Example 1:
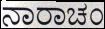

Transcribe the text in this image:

ನಾರಾಚಂ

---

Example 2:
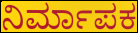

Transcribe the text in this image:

ನಿರ್ಮಾಪಕ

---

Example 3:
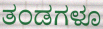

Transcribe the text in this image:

ತಂಡಗಳೂ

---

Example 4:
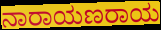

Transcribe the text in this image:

ನಾರಾಯಣರಾಯ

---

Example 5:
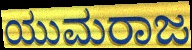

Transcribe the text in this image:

ಯುಮರಾಜ